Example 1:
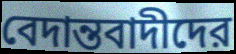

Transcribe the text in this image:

বেদান্তবাদীদের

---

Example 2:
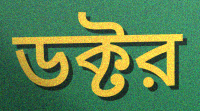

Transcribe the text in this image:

ডক্টর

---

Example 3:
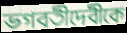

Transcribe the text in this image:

ভগবতীদেবীকে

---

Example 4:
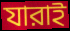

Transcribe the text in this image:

যারাই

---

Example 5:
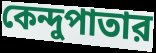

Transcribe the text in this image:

কেন্দুপাতার